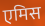
एमिस